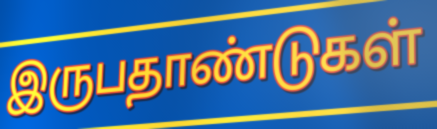
இருபதாண்டுகள்